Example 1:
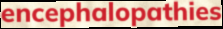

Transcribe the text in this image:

encephalopathies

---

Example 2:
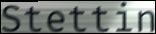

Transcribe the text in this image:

Stettin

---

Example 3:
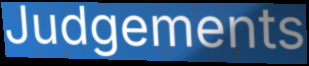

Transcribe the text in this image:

Judgements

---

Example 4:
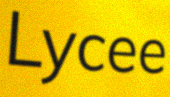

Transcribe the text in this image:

Lycee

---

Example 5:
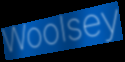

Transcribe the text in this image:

Woolsey